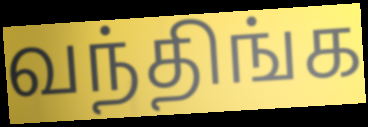
வந்திங்க